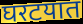
घरटयात